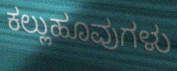
ಕಲ್ಲುಹೂವುಗಳು